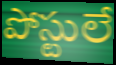
పోస్టులే